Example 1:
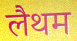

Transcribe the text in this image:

लैथम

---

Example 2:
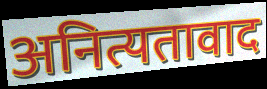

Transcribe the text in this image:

अनित्यतावाद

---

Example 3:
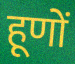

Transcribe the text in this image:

हूणों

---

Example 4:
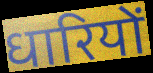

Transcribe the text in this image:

धारियों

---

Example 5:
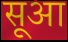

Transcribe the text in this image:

सूआ